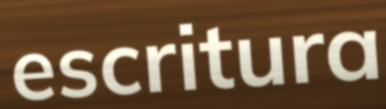
escritura